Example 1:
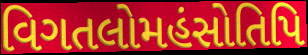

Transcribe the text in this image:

વિગતલોમહંસોતિપિ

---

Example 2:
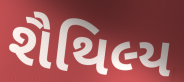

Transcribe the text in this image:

શૈથિલ્ય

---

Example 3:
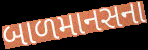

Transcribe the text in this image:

બાળમાનસના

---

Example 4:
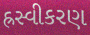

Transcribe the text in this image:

હ્રસ્વીકરણ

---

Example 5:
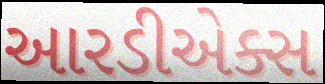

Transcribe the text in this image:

આરડીએક્સ